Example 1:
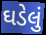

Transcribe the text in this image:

ઘડેલું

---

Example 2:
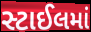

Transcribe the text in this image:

સ્ટાઈલમાં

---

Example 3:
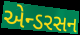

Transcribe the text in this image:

એન્ડરસન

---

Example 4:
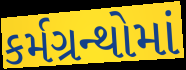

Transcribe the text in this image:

કર્મગ્રન્થોમાં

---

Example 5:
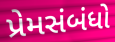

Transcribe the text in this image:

પ્રેમસંબંધો